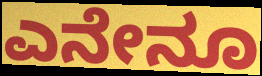
ಎನೇನೂ